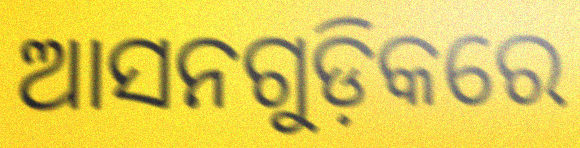
ଆସନଗୁଡ଼ିକରେ